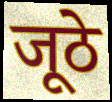
जूठे